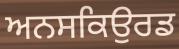
ਅਨਸਕਿਉਰਡ